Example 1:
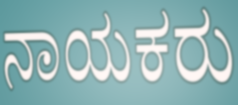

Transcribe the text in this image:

ನಾಯಕರು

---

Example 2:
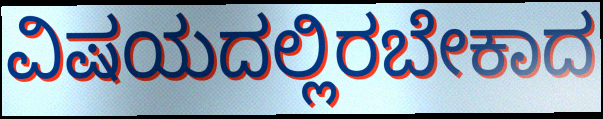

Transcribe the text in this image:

ವಿಷಯದಲ್ಲಿರಬೇಕಾದ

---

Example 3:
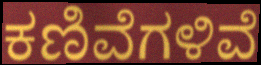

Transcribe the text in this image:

ಕಣಿವೆಗಳಿವೆ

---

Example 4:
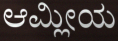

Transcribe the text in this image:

ಆಮ್ಲೀಯ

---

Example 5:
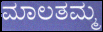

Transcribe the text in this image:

ಮಾಲತಮ್ಮ